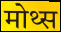
मोथ्स